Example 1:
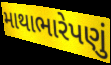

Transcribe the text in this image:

માથાભારેપણું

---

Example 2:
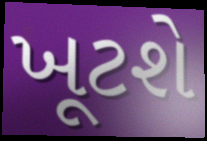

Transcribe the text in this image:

ખૂટશે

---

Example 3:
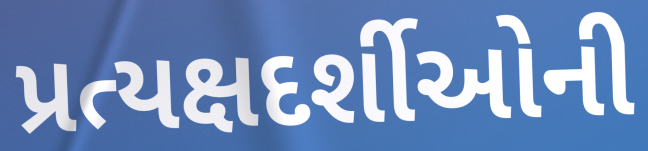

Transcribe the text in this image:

પ્રત્યક્ષદર્શીઓની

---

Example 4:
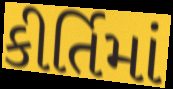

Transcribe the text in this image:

કીર્તિમાં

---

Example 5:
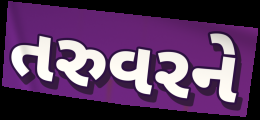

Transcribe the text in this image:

તરુવરને